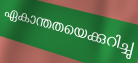
ഏകാന്തതയെക്കുറിച്ചു